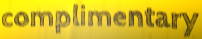
complimentary